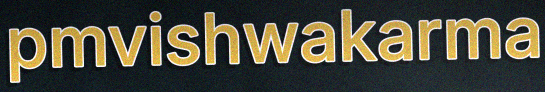
pmvishwakarma